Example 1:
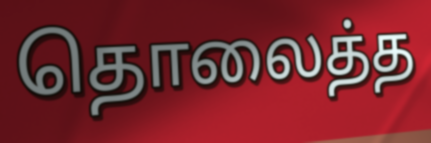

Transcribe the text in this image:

தொலைத்த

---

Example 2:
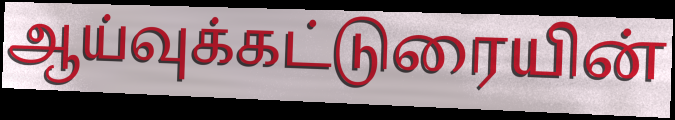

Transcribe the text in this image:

ஆய்வுக்கட்டுரையின்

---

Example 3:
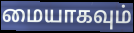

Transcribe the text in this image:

மையாகவும்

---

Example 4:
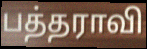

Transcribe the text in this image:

பத்தராவி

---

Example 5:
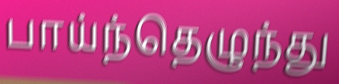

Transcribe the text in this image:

பாய்ந்தெழுந்து